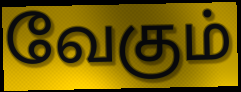
வேகும்